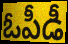
ఓపీడీ